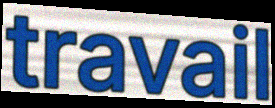
travail